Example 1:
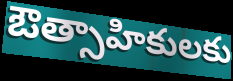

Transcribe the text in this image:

ఔత్సాహికులకు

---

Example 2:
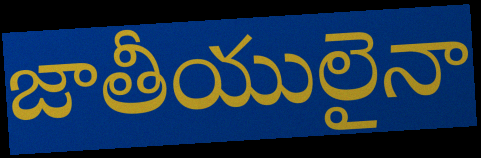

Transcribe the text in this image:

జాతీయులైనా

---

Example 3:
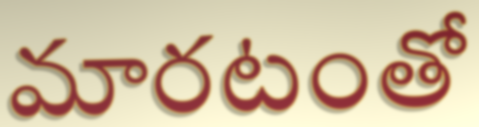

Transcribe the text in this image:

మారటంతో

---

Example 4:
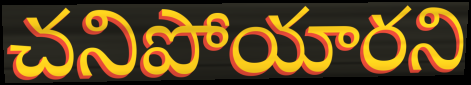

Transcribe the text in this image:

చనిపోయారని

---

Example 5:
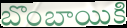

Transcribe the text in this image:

బొంబాయికి